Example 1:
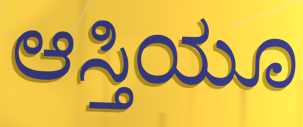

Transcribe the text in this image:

ಆಸ್ತಿಯೂ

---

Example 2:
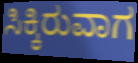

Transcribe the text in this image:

ಸಿಕ್ಕಿರುವಾಗ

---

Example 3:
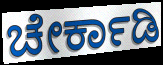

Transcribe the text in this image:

ಚೇರ್ಕಾಡಿ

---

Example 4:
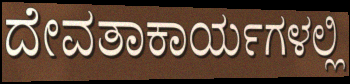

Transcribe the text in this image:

ದೇವತಾಕಾರ್ಯಗಳಲ್ಲಿ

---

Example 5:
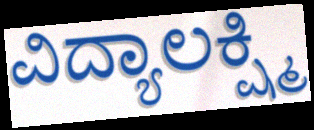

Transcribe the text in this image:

ವಿದ್ಯಾಲಕ್ಷ್ಮಿ